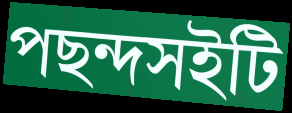
পছন্দসইটি